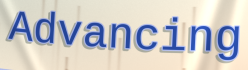
Advancing